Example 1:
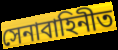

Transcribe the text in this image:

সেনাবাহিনীত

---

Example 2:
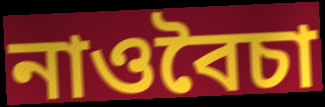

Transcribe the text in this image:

নাওবৈচা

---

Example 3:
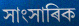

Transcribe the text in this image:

সাংসাৰিক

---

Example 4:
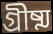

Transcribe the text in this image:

গ্ৰীষ্ম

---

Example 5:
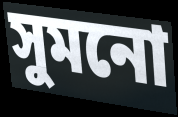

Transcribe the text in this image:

সুমনো